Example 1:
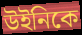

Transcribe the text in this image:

উইনিকে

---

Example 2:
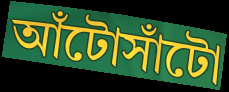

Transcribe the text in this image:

আঁটোসাঁটো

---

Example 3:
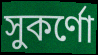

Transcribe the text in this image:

সুকর্ণো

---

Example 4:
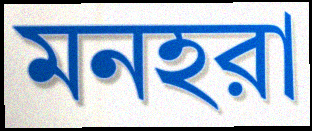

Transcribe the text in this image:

মনহরা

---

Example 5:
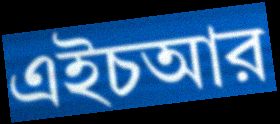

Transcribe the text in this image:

এইচআর